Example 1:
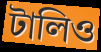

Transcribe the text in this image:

টালিও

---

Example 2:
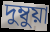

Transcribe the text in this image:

দুম্বুয়া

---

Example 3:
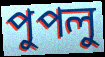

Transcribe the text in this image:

পুপলু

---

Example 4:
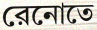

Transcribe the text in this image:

রেনোতে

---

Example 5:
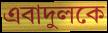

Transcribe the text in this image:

এবাদুলকে